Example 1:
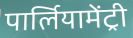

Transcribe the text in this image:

पार्लियामेंट्री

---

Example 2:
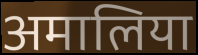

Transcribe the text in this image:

अमालिया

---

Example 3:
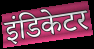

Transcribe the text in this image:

इंडिकेटर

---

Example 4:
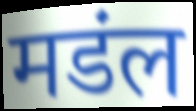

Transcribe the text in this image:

मडंल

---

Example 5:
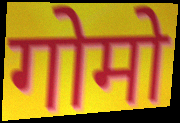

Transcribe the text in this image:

गोमो